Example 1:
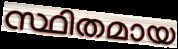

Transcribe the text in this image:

സ്ഥിതമായ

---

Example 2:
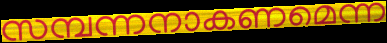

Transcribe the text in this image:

സമ്പന്നനാകണമെന്ന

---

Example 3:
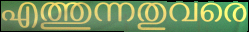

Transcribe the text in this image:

എത്തുന്നതുവരെ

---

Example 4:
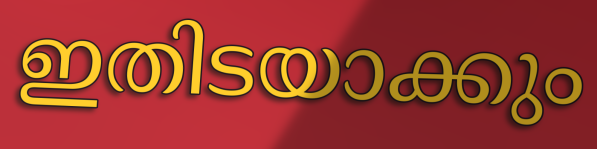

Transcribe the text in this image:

ഇതിടയാക്കും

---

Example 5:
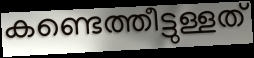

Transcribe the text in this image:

കണ്ടെത്തീട്ടുള്ളത്